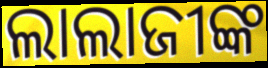
ଲାଲାଜୀଙ୍କ